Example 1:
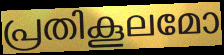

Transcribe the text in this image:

പ്രതികൂലമോ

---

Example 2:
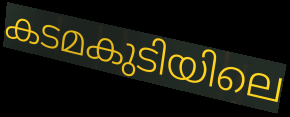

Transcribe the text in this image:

കടമകുടിയിലെ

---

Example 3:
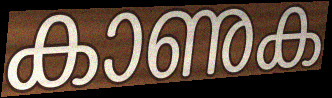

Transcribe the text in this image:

കാണുക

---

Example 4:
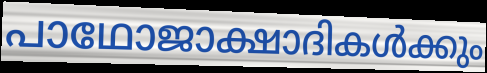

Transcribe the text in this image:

പാഥോജാക്ഷാദികൾക്കും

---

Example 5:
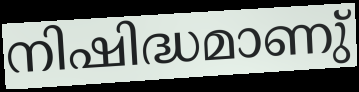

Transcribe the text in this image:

നിഷിദ്ധമാണു്